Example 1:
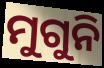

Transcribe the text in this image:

ମୁଗୁନି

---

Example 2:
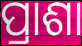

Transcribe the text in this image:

ପ୍ରାଶା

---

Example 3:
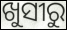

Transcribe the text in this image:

ଖୁସୀରୁ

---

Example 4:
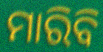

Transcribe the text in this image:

ମାରିବି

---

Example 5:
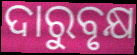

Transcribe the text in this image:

ଦାରୁବୃକ୍ଷ